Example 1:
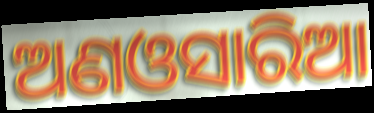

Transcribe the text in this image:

ଅଣଓସାରିଆ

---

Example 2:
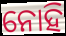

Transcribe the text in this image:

ନୋହି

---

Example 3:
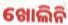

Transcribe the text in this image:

ଖୋଲିନି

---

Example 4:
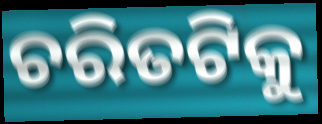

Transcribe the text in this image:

ଚରିତଟିକୁ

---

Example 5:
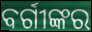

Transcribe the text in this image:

ବର୍ଗୀଙ୍କର